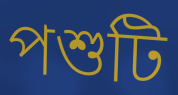
পশুটি